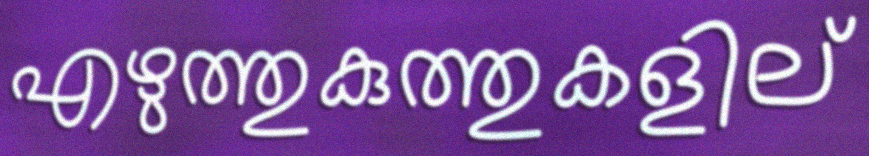
എഴുത്തുകുത്തുകളില്